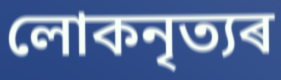
লোকনৃত্যৰ